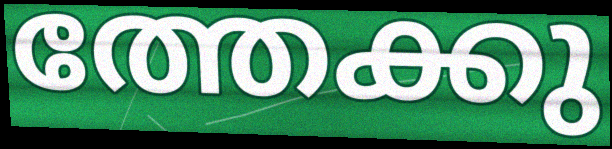
ത്തേക്കു